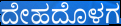
ದೇಹದೊಳಗ